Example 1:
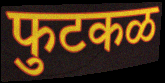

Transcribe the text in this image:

फुटकळ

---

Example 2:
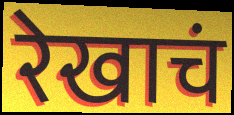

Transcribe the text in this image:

रेखाचं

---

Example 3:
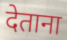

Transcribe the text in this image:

देताना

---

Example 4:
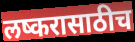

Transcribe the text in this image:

लष्करासाठीच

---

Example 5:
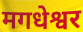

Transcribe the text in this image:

मगधेश्वर